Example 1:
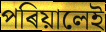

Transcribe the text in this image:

পৰিয়ালেই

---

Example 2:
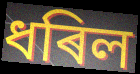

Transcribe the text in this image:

ধৰিল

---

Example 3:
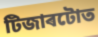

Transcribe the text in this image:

টিজাৰটোত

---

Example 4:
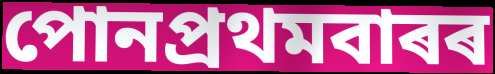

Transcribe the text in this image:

পোনপ্ৰথমবাৰৰ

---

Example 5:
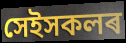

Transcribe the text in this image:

সেইসকলৰ